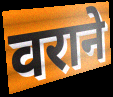
वराने